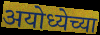
अयोध्येच्या